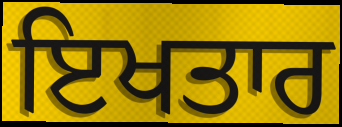
ਇਖਤਾਰ